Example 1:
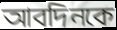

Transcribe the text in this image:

আবদিনকে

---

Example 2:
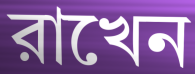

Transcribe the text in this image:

রাখেন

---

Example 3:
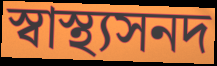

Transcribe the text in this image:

স্বাস্থ্যসনদ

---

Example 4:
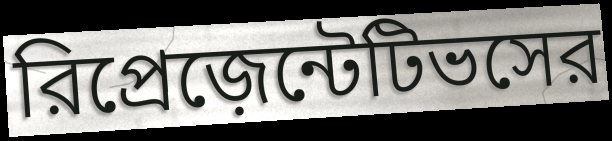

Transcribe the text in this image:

রিপ্রেজ়েন্টেটিভসের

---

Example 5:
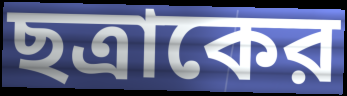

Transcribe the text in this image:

ছত্রাকের